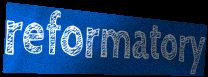
reformatory